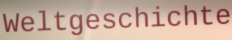
Weltgeschichte